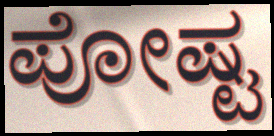
ಪೋಷ್ಟ